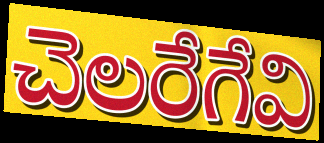
చెలరేగేవి